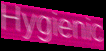
Hygienic